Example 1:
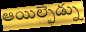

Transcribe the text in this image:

ఆయిల్ఫెడ్ను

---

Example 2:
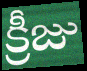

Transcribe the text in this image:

క్రీజు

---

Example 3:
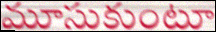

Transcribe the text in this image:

మూసుకుంటూ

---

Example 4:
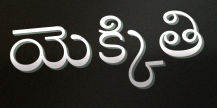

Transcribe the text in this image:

యెక్కితి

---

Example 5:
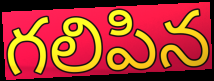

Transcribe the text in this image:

గలిపిన